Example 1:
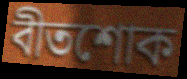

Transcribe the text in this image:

বীতশোক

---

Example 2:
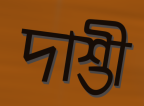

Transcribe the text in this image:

দাশ্তী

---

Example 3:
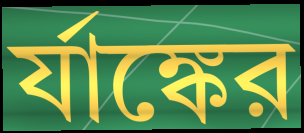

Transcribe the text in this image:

র্যাঙ্কের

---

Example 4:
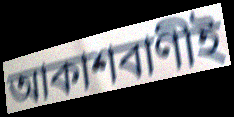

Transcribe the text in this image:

আকাশবাণীই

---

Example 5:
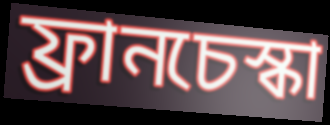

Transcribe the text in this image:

ফ্রানচেস্কা